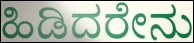
ಹಿಡಿದರೇನು